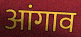
आंगाव